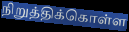
நிறுத்திக்கொள்ள